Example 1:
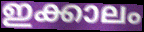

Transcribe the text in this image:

ഇക്കാലം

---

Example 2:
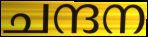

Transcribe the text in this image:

ചന്ദന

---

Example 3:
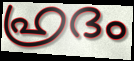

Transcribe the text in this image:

ഹ്രദം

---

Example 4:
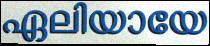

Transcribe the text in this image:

ഏലിയായേ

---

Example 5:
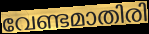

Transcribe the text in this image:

വേണ്ടമാതിരി